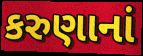
કરુણાનાં